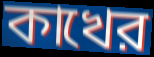
কাখের